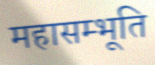
महासम्भूति